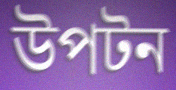
উপটন